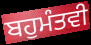
ਬਹੁਮੰਤਵੀ